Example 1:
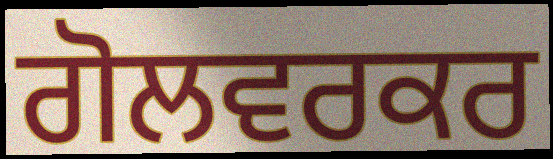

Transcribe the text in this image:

ਗੋਲਵਰਕਰ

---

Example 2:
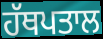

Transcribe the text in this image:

ਹੱਥਪਤਾਲ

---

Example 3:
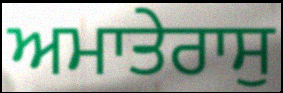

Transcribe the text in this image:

ਅਮਾਤੇਰਾਸੁ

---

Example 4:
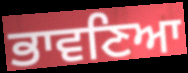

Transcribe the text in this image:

ਭਾਵਣਿਆ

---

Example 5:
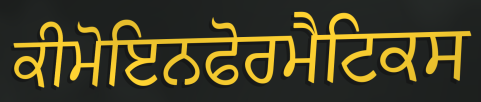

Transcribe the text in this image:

ਕੀਮੋਇਨਫੋਰਮੈਟਿਕਸ